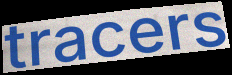
tracers